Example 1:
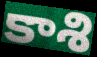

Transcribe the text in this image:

కాశి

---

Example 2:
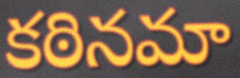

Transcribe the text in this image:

కఠినమా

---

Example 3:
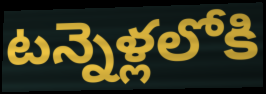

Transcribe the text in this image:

టన్నెళ్లలోకి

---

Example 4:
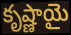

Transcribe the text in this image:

కృష్ణాయై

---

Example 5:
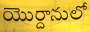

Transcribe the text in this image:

యొర్దానులో